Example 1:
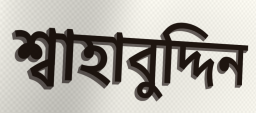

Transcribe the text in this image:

শ্বাহাবুদ্দিন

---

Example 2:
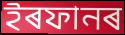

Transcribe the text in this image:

ইৰফানৰ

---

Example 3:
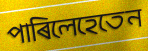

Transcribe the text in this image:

পাৰিলেহেতেন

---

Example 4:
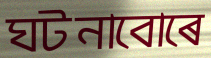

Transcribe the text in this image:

ঘটনাবোৰে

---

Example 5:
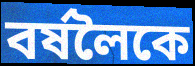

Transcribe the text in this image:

বৰ্ষলৈকে